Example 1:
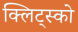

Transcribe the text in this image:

क्लिट्स्को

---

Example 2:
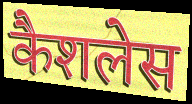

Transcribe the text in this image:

कैशलेस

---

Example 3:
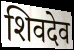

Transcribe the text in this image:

शिवदेव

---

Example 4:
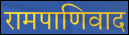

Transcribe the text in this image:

रामपाणिवाद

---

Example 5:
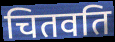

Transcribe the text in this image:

चितवति